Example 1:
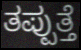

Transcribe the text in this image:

ತಪ್ಪುತ್ತೆ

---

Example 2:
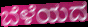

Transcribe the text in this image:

ಬೆಳೆಯದ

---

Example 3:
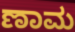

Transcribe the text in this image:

ಣಾಮ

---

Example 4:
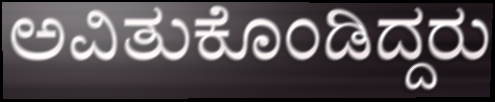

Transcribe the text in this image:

ಅವಿತುಕೊಂಡಿದ್ದರು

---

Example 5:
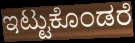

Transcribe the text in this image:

ಇಟ್ಟುಕೊಂಡರೆ